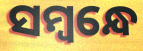
ସମ୍ବନ୍ଧେ